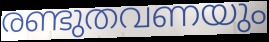
രണ്ടുതവണയും